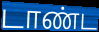
டாண்ட